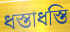
ধস্তাধস্তি